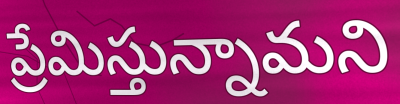
ప్రేమిస్తున్నామని